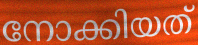
നോക്കിയത്